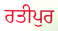
ਰਤੀਪੁਰ